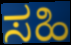
ಸಹಿ